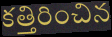
కత్తిరించిన